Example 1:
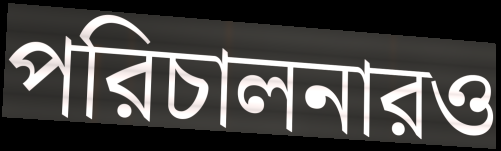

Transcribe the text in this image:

পরিচালনারও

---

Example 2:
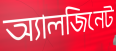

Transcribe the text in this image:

অ্যালজিনেট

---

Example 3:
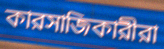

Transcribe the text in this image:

কারসাজিকারীরা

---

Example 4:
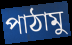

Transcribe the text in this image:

পাঠামু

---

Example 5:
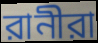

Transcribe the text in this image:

রানীরা